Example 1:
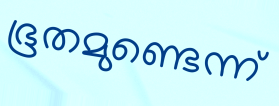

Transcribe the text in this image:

ഭൂതമുണ്ടെന്ന്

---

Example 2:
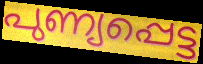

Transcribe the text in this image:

പുണ്യപ്പെട്ട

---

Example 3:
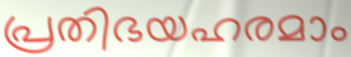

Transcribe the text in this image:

പ്രതിഭയഹരമാം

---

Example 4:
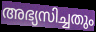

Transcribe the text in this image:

അഭ്യസിച്ചതും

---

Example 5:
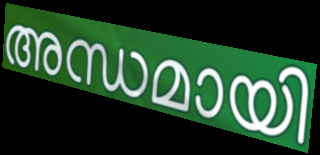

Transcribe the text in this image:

അന്ധമായി